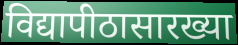
विद्यापीठासारख्या